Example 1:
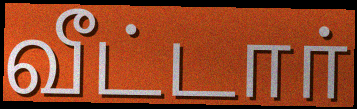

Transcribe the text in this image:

வீட்டார்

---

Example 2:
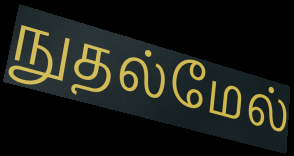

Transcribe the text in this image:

நுதல்மேல்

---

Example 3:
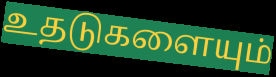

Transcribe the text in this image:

உதடுகளையும்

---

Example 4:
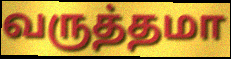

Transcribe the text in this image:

வருத்தமா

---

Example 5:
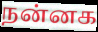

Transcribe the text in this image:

நன்னக